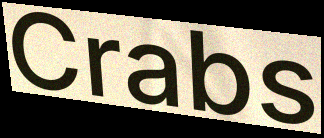
Crabs